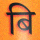
बि